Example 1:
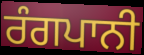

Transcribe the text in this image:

ਰੰਗਪਾਨੀ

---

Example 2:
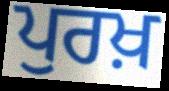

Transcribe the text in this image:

ਪੁਰਖ਼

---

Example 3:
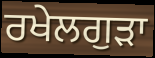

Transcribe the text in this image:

ਰਖੇਲਗੁੜਾ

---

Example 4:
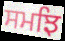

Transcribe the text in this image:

ਸਮਝਿ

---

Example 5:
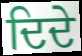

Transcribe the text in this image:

ਦਿਦੇ